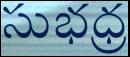
సుభధ్ర